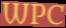
WPC